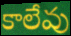
కాలేవు